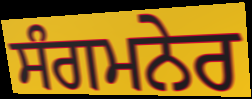
ਸੰਗਮਨੇਰ